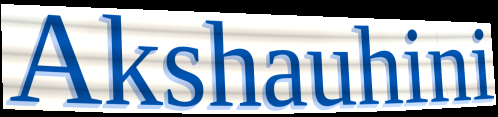
Akshauhini